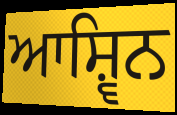
ਆਸ਼੍ਵਿਨ